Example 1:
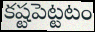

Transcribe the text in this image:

కష్టపెట్టటం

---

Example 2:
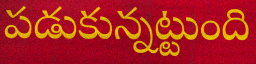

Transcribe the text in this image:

పడుకున్నట్టుంది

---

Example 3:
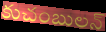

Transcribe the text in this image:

కుచంబులన్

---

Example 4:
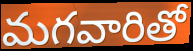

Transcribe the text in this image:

మగవారితో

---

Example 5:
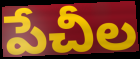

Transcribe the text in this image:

పేచీల